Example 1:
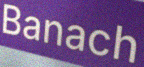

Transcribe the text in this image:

Banach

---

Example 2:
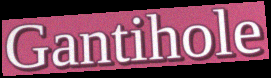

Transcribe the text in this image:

Gantihole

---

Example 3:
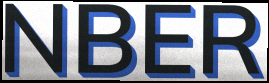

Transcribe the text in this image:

NBER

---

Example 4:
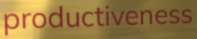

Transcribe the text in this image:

productiveness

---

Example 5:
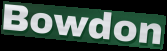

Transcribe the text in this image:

Bowdon